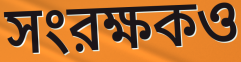
সংরক্ষকও